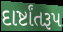
દાર્ષ્ટાંતરૂપ